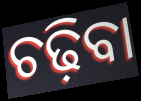
ଚଢ଼ିବା